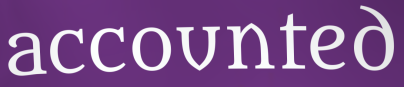
accounted